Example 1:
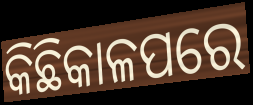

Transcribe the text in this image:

କିଛିକାଳପରେ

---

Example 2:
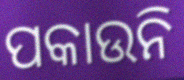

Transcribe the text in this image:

ପକାଉନି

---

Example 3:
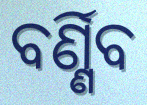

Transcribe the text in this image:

ବର୍ଣ୍ଣିବ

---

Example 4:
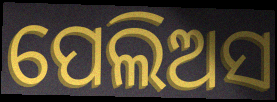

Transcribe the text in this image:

ପେଲିଅସ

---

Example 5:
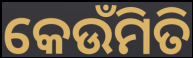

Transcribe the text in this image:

କେଉଁମିତି